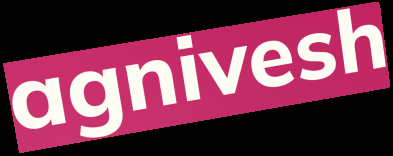
agnivesh